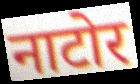
नाटोर